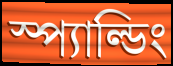
স্প্যাল্ডিং